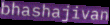
bhashajivan